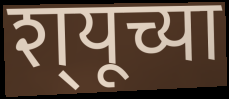
श्यूच्या